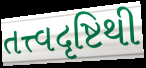
તત્ત્વદૃષ્ટિથી